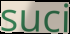
suci